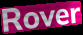
Rover